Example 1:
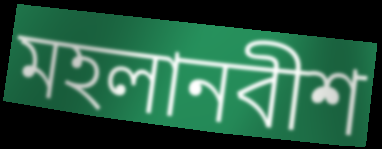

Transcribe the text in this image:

মহলানবীশ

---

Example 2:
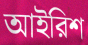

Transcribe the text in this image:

আইরিশ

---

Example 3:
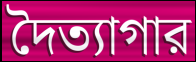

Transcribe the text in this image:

দৈত্যাগার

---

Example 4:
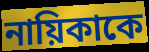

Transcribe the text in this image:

নায়িকাকে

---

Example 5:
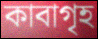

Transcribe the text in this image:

কাবাগৃহ